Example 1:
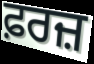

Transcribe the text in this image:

ਫ਼ਰਜ਼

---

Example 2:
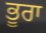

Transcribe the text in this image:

ਭੂਰਾ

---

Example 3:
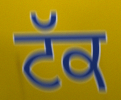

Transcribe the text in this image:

ਟੱਕ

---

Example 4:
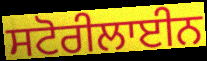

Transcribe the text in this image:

ਸਟੋਰੀਲਾਈਨ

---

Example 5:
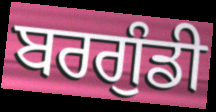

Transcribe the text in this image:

ਬਰਗੁੰਡੀ